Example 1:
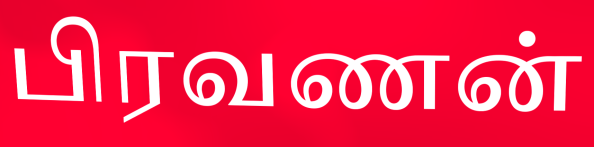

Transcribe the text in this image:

பிரவணன்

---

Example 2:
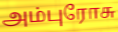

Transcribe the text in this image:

அம்புரோசு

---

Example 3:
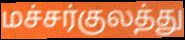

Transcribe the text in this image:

மச்சர்குலத்து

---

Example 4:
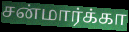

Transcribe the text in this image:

சன்மார்க்கா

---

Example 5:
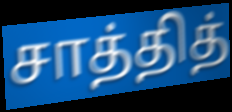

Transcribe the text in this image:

சாத்தித்